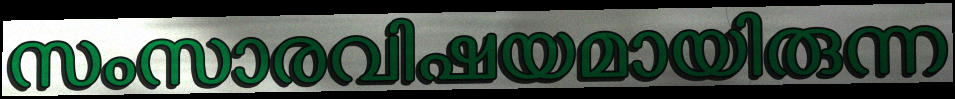
സംസാരവിഷയമായിരുന്ന